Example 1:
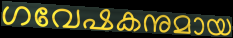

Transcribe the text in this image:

ഗവേഷകനുമായ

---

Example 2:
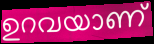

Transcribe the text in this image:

ഉറവയാണ്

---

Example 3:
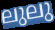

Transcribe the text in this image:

ലുലു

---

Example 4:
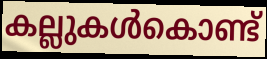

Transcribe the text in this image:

കല്ലുകൾകൊണ്ട്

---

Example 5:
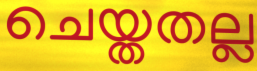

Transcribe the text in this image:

ചെയ്തതല്ല